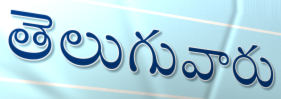
తెలుగువారు